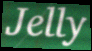
Jelly